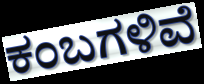
ಕಂಬಗಳಿವೆ